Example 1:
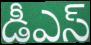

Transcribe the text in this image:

డీఎస్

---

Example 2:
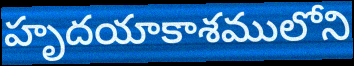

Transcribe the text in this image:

హృదయాకాశములోని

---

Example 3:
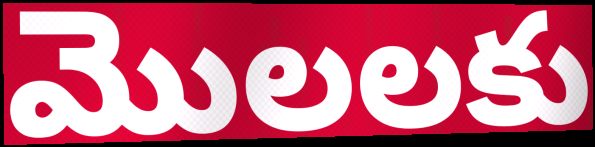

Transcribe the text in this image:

మొలలకు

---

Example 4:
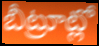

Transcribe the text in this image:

బీట్రూట్లో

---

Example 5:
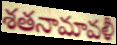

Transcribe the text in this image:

శతనామావళీ